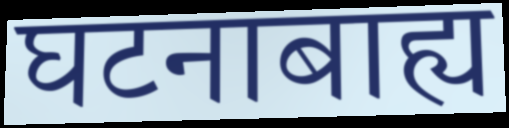
घटनाबाह्य